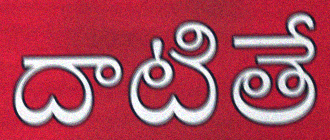
దాటితే